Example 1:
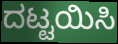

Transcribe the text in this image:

ದಟ್ಟಯಿಸಿ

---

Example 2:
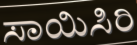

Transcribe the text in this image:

ಸಾಯಿಸಿರಿ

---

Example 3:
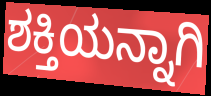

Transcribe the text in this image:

ಶಕ್ತಿಯನ್ನಾಗಿ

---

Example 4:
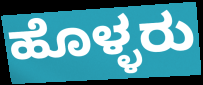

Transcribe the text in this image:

ಹೊಳ್ಳರು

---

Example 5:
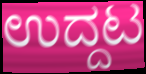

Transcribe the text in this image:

ಉದ್ದಟ